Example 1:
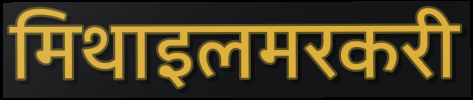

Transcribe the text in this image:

मिथाइलमरकरी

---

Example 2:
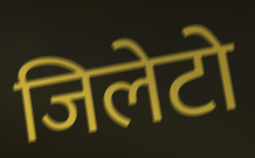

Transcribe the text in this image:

जिलेटो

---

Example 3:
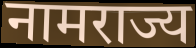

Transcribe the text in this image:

नामराज्य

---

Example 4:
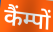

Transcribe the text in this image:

कैंम्पों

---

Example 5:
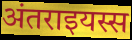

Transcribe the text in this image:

अंतराइयस्स